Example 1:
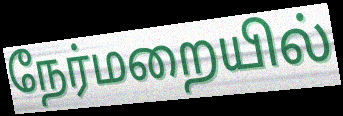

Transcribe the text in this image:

நேர்மறையில்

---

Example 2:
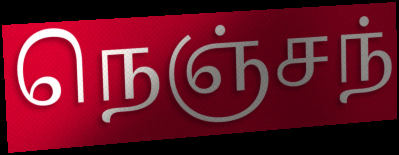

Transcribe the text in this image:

நெஞ்சந்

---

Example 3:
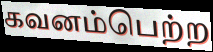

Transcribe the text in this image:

கவனம்பெற்ற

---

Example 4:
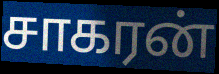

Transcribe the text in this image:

சாகரன்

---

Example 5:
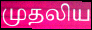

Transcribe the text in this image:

முதலிய